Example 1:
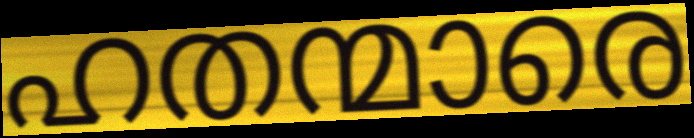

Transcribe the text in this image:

ഹതന്മാരെ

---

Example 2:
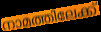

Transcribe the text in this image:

നാമത്തിലേക്ക്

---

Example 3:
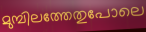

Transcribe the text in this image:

മുമ്പിലത്തേതുപോലെ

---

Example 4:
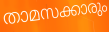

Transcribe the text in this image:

താമസക്കാരും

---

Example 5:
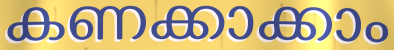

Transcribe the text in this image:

കണക്കാക്കാം